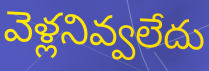
వెళ్లనివ్వలేదు